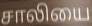
சாலியை